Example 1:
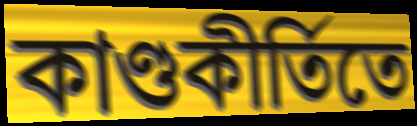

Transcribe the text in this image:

কাণ্ডকীর্তিতে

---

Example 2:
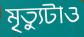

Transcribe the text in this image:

মৃত্যুটাও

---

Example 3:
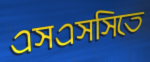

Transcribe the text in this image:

এসএসসিতে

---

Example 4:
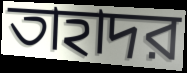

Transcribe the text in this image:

তাহাদর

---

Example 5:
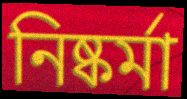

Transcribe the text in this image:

নিষ্কর্মা